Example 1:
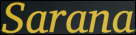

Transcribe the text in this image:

Sarana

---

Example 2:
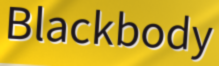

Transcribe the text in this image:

Blackbody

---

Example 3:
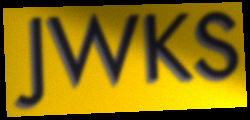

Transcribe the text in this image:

JWKS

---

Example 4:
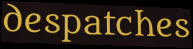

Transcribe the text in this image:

despatches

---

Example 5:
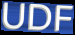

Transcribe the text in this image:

UDF